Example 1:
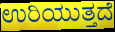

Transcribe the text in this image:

ಉರಿಯುತ್ತದೆ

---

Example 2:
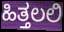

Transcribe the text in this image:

ಹಿತ್ತಲಲಿ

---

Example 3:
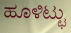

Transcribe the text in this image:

ಹೂಳಿಟ್ಟು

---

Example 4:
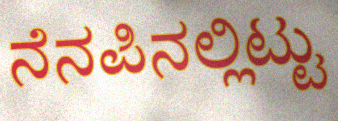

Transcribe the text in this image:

ನೆನಪಿನಲ್ಲಿಟ್ಟು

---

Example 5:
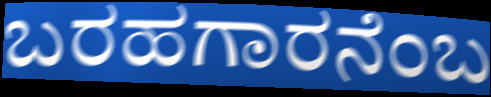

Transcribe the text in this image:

ಬರಹಗಾರನೆಂಬ